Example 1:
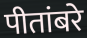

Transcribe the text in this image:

पीतांबरे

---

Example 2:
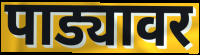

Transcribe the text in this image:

पाड्यावर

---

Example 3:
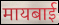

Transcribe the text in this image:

मायबाई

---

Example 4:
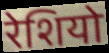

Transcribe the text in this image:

रेशियो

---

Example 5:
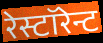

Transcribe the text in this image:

रेस्टॉरेन्ट